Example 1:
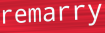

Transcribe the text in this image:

remarry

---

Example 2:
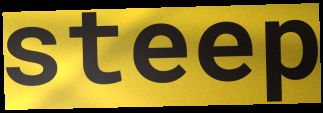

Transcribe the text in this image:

steep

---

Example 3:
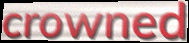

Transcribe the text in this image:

crowned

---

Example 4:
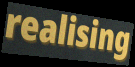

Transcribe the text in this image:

realising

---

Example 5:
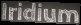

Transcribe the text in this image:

Iridium